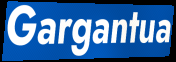
Gargantua